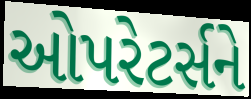
ઓપરેટર્સને